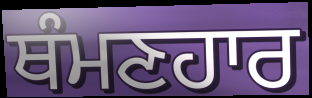
ਥੰਮਣਹਾਰ